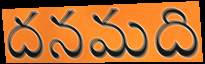
దనమది